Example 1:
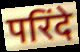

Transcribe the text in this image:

परिंदे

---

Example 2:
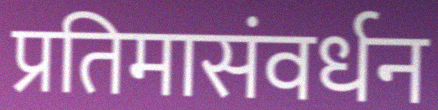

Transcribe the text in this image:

प्रतिमासंवर्धन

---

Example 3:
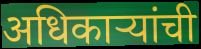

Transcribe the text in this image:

अधिकाऱ्यांची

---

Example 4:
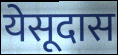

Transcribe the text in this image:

येसूदास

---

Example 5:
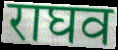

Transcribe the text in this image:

राघव